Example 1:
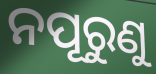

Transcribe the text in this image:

ନପୂରୁଣୁ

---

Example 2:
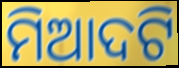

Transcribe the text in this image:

ମିଆଦଟି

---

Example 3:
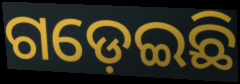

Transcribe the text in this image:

ଗଡ଼େଇଛି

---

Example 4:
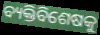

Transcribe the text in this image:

ବ୍ୟକ୍ତିବିଶେଷକୁ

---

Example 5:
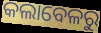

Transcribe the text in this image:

କଲାବେଳରୁ